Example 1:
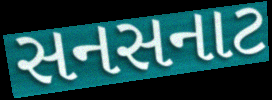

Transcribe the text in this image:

સનસનાટ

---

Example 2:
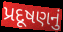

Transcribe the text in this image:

પ્રદૂષણનું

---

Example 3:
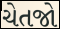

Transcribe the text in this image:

ચેતજો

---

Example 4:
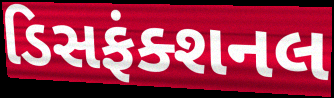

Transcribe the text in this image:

ડિસફંક્શનલ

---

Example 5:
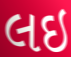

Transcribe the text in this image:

લઇ